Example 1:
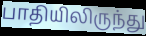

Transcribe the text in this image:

பாதியிலிருந்து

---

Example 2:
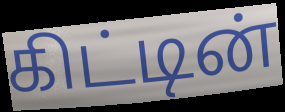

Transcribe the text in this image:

கிட்டின்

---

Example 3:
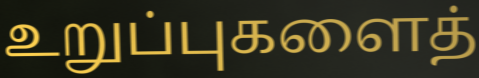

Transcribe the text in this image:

உறுப்புகளைத்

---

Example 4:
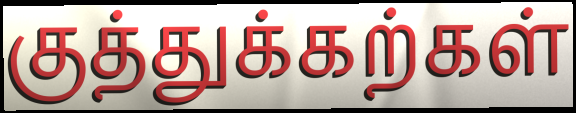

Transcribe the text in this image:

குத்துக்கற்கள்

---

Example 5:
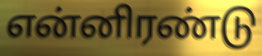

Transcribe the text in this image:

என்னிரண்டு